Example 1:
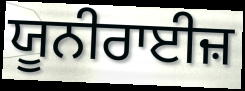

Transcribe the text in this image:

ਯੂਨੀਰਾਈਜ਼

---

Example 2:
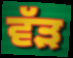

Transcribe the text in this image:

ਵੱੜ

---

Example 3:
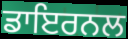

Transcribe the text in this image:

ਡਾਇਰਨਲ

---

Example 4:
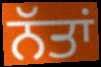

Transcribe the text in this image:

ਨੱਤਾਂ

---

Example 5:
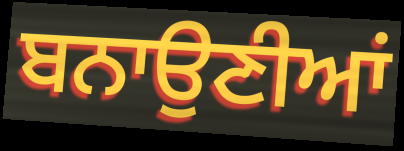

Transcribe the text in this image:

ਬਨਾਉਣੀਆਂ